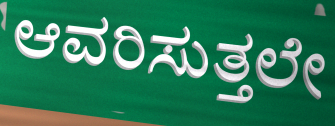
ಆವರಿಸುತ್ತಲೇ